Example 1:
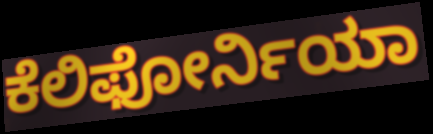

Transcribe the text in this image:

ಕೆಲಿಫೋರ್ನಿಯಾ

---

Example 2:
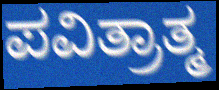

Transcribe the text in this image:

ಪವಿತ್ರಾತ್ಮ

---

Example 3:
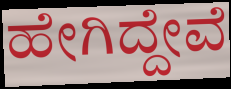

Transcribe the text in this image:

ಹೇಗಿದ್ದೇವೆ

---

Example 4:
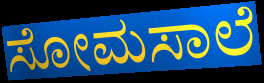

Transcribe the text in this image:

ಸೋಮಸಾಲೆ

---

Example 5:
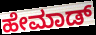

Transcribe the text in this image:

ಹೇಮಾಡ್